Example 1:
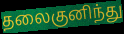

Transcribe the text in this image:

தலைகுனிந்து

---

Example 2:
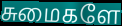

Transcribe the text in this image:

சுமைகளே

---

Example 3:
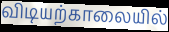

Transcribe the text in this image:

விடியற்காலையில்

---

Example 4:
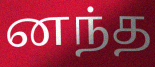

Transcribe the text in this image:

னந்த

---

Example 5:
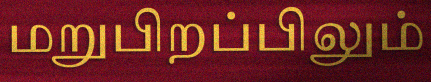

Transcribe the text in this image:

மறுபிறப்பிலும்